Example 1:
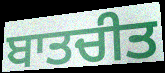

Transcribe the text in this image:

ਬਾਤਚੀਤ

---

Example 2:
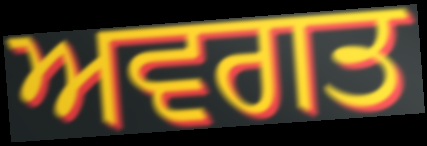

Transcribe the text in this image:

ਅਵਗਤ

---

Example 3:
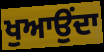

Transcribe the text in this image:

ਖੁਆਉਂਦਾ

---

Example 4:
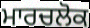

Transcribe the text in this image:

ਮਾਰਚਲੋਕ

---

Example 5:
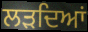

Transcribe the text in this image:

ਲੜਦਿਆਂ